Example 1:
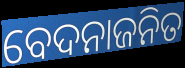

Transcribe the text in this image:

ବେଦନାଜନିତ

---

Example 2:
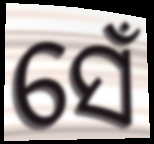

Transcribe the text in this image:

ସେଁ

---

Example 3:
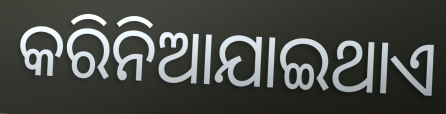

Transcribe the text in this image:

କରିନିଆଯାଇଥାଏ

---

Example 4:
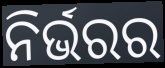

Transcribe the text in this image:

ନିର୍ଭରର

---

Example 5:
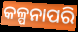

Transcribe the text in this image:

କଳ୍ପନାପରି